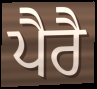
ਪੈਰੈ